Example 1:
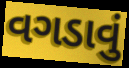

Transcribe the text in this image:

વગડાવું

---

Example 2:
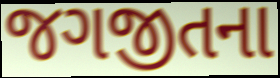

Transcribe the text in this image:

જગજીતના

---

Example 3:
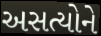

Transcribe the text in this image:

અસત્યોને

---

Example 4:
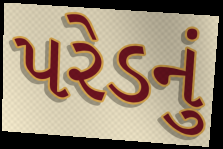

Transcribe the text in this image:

પરેડનું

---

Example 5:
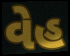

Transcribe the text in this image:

વેહ